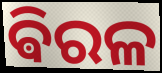
ଵିରଳ